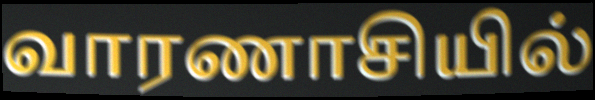
வாரணாசியில்